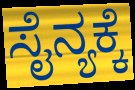
ಸೈನ್ಯಕ್ಕೆ